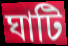
ঘাটি